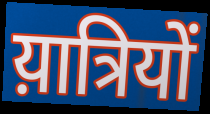
य़ात्रियों